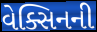
વેક્સિનની